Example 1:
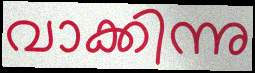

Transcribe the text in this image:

വാക്കിന്നു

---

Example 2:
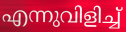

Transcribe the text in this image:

എന്നുവിളിച്ച്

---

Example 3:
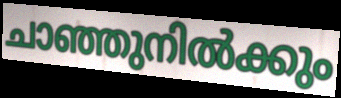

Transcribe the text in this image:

ചാഞ്ഞുനിൽക്കും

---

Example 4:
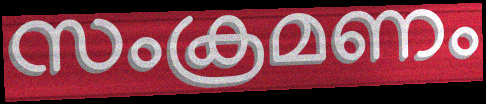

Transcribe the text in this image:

സംക്രമണം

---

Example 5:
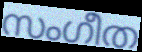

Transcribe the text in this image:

സംഗീത